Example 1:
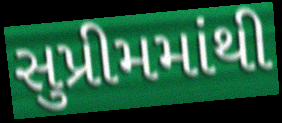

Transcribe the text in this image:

સુપ્રીમમાંથી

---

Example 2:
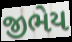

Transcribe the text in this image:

જીભેય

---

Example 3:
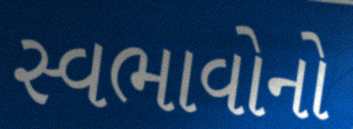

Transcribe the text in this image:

સ્વભાવોનો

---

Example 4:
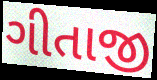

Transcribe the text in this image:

ગીતાજી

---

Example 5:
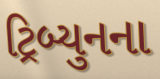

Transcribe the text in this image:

ટ્રિબ્યુનના